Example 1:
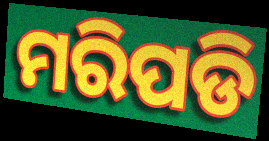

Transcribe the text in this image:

ମରିପଡି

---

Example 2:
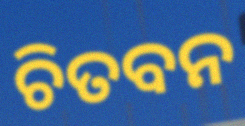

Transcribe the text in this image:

ଚିତବନ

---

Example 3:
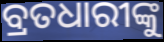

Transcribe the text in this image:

ବ୍ରତଧାରୀଙ୍କୁ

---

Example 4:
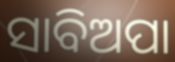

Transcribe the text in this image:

ସାବିଅପା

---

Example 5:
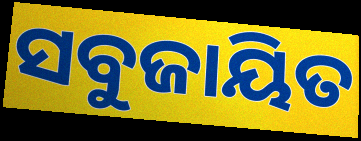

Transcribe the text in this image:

ସବୁଜାୟିତ